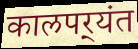
कालपर्यंत